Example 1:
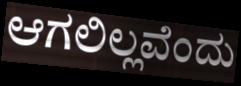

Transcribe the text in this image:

ಆಗಲಿಲ್ಲವೆಂದು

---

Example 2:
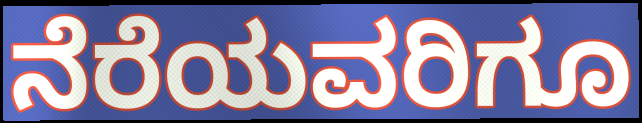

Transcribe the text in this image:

ನೆರೆಯವರಿಗೂ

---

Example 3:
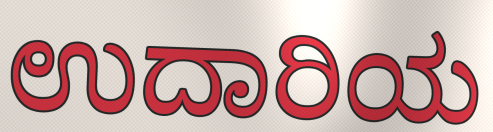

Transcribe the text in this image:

ಉದಾರಿಯ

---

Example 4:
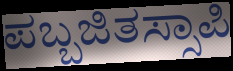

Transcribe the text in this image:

ಪಬ್ಬಜಿತಸ್ಸಾಪಿ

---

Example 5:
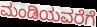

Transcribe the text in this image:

ಮಂಡಿಯವರೆಗೆ